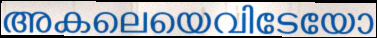
അകലെയെവിടേയോ